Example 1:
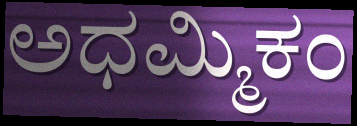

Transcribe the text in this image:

ಅಧಮ್ಮಿಕಂ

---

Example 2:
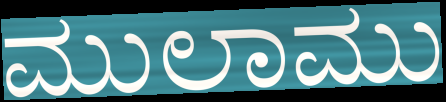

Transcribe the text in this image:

ಮುಲಾಮು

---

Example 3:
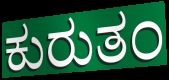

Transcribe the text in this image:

ಕುರುತಂ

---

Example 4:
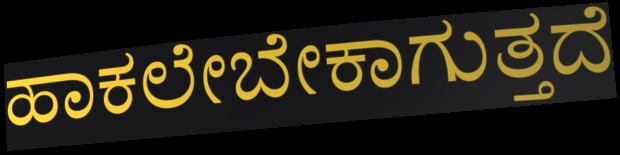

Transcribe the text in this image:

ಹಾಕಲೇಬೇಕಾಗುತ್ತದೆ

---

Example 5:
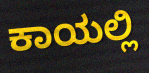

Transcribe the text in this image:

ಕಾಯಲ್ಲಿ